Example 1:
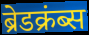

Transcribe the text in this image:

ब्रेडक्रंब्स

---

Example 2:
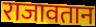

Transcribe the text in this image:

राजावतान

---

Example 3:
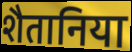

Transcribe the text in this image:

शैतानिया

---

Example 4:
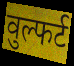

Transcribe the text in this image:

वुल्फर्ट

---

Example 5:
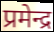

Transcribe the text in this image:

प्रमेन्द्र